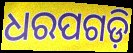
ଧରପଗଡ଼ି